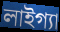
লাইগ্যা